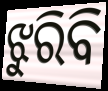
ଝୁରିବି